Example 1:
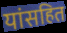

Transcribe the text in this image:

यांसहित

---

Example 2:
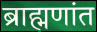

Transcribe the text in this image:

ब्राह्मणांत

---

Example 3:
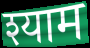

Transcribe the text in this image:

श्याम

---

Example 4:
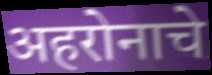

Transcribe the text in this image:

अहरोनाचे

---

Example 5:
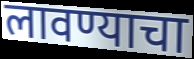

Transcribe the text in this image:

लावण्याचा